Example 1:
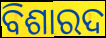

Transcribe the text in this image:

ବିଶାରଦ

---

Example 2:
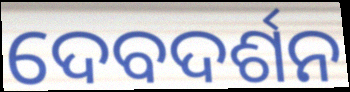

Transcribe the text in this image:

ଦେବଦର୍ଶନ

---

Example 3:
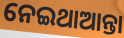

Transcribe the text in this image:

ନେଇଥାଆନ୍ତା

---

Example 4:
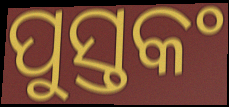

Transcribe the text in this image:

ପୁସ୍ତକଂ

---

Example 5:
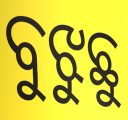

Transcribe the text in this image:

ବୁଝୁଛୁ